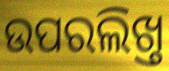
ଉପରଲିଖ୍ତ